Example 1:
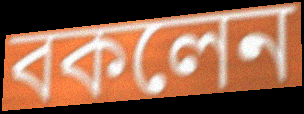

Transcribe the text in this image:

বকলেন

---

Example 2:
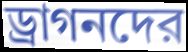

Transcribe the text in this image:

ড্রাগনদের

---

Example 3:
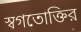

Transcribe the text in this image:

স্বগতোক্তির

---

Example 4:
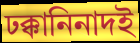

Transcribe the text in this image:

ঢক্কানিনাদই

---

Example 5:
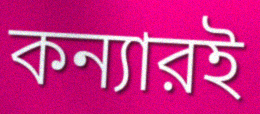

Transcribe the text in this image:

কন্যারই